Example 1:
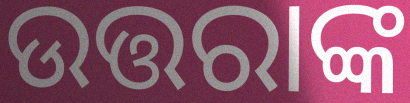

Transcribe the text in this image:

ଉତ୍ତରାଙ୍କ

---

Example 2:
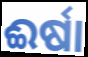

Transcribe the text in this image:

ଈର୍ଷା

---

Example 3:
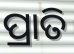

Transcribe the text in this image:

ପ୍ରାତି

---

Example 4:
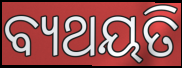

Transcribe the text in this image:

ବ୍ୟଥୟତି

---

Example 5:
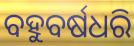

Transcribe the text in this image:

ବହୁବର୍ଷଧରି